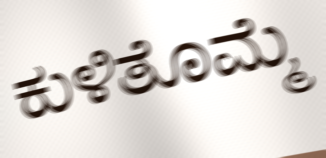
ಕುಳಿತೊಮ್ಮೆ